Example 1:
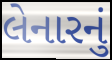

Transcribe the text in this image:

લેનારનું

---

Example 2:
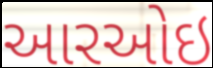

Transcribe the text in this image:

આરઓઇ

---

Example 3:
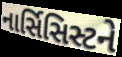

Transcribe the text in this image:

નાર્સિસિસ્ટને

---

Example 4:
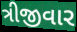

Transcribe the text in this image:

ત્રીજીવાર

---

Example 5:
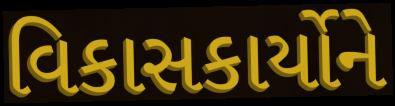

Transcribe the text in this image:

વિકાસકાર્યોને